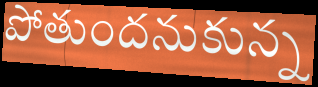
పోతుందనుకున్న